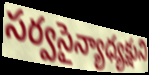
సర్వసైన్యాధ్యక్షుని